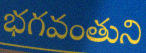
భగవంతుని